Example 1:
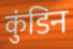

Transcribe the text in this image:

कुंडिन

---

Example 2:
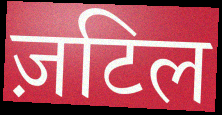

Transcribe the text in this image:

ज़टिल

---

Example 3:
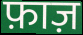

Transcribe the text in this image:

फ़ाज़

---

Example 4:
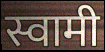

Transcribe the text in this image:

स्‍वामी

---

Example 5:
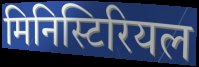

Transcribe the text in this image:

मिनिस्टिरियल